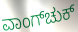
ವಾಂಗ್‌ಚುಕ್